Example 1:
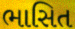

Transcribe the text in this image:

ભાસિત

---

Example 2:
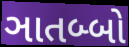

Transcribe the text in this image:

ઞાતબ્બો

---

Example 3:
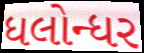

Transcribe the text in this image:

ધલોન્ધર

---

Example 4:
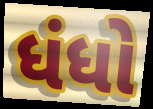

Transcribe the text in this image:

ધંધો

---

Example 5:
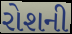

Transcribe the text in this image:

રોશની